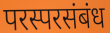
परस्परसंबंध